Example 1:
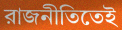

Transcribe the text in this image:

রাজনীতিতেই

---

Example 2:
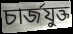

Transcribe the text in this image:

চার্জযুক্ত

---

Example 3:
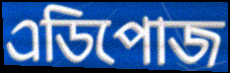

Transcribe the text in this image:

এডিপোজ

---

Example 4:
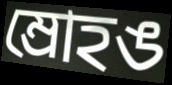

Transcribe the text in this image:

ম্রোহঙ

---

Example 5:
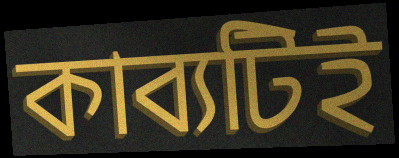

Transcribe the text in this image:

কাব্যটিই